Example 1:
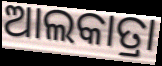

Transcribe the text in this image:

ଆଲକାତ୍ରା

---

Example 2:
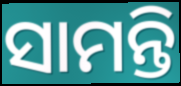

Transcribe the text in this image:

ସାମନ୍ତି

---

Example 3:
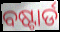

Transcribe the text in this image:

ବଷ୍ଟାର୍ଡ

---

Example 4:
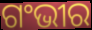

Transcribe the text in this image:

ଗଂଭୀର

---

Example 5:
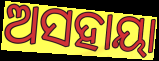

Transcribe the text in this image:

ଅସହାୟା